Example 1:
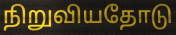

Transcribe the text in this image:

நிறுவியதோடு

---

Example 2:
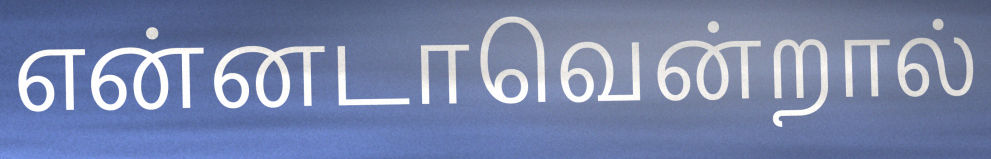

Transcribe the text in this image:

என்னடாவென்றால்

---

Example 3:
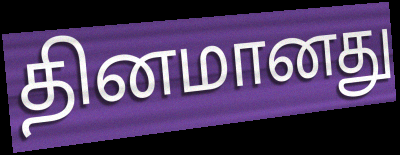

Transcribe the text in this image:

தினமானது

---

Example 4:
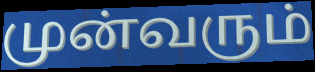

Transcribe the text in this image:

முன்வரும்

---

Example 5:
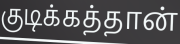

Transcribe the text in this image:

குடிக்கத்தான்